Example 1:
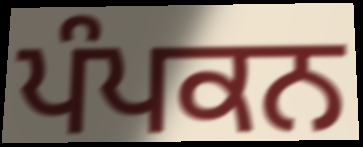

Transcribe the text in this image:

ਪੰਪਕਨ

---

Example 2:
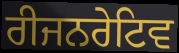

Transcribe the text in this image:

ਰੀਜਨਰੇਟਿਵ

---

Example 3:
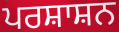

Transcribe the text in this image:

ਪਰਸ਼ਾਸ਼ਨ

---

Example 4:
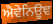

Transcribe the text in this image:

ਐਵੇਨਿਊਞ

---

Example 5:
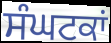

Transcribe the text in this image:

ਸੰਘਟਕਾਂ